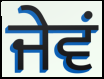
ਜੇਵਂ